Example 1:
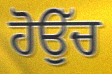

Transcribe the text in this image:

ਹੋਉੱਚ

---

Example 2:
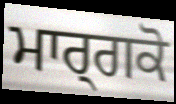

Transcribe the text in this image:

ਮਾਰ੍ਗਕੋ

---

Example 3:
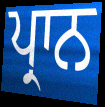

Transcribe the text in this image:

ਪ੍ਰਾਨ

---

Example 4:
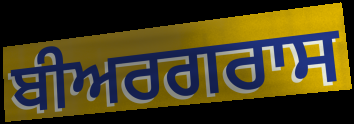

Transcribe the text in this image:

ਬੀਅਰਗਰਾਸ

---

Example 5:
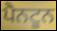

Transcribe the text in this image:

ਪੈਨਟੂਨ